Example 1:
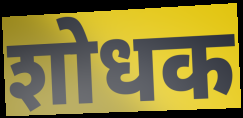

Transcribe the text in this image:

शोधक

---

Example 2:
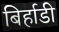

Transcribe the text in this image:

बिर्हाडी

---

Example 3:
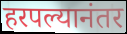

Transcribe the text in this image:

हरपल्यानंतर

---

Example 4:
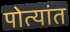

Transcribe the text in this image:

पोत्यांत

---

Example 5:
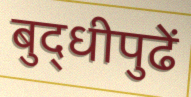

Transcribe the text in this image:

बुद्धीपुढें